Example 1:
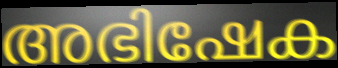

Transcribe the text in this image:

അഭിഷേക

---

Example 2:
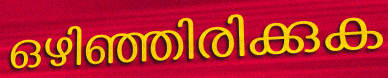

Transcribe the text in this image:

ഒഴിഞ്ഞിരിക്കുക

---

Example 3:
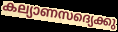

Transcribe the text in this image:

കല്യാണസദ്യെക്കു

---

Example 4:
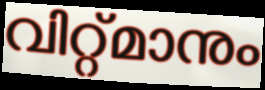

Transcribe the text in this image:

വിറ്റ്മാനും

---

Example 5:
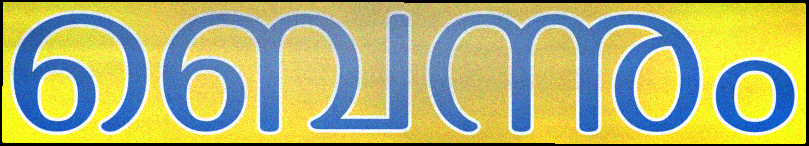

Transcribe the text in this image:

ബെന്നും